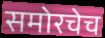
समोरचेच